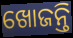
ଖୋଜନ୍ତି